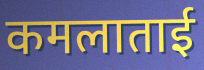
कमलाताई